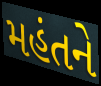
મહંતને